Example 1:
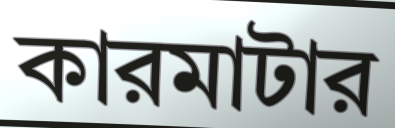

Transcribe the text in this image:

কারমাটার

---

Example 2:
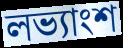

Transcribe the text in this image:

লভ্যাংশ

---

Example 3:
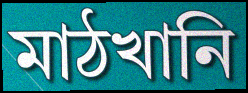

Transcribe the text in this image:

মাঠখানি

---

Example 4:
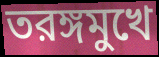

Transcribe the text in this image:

তরঙ্গমুখে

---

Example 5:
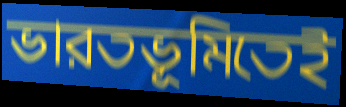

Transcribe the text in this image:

ভারতভূমিতেই